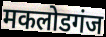
मकलोडगंज